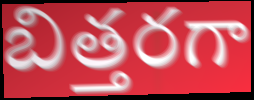
బిత్తరగా